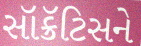
સૉક્રૅટિસને